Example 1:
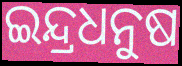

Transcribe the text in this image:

ଇନ୍ଦ୍ରଧନୁଷ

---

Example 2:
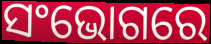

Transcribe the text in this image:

ସଂଭୋଗରେ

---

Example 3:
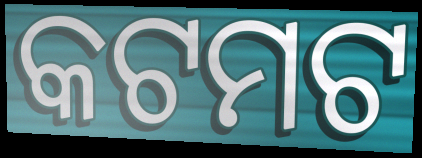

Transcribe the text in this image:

କଟମଟ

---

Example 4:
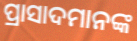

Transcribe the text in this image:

ପ୍ରାସାଦମାନଙ୍କ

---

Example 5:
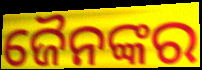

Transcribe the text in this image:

ଜୈନଙ୍କର